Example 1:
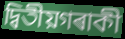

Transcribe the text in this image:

দ্বিতীয়গৰাকী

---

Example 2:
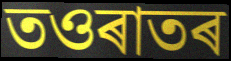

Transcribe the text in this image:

তওৰাতৰ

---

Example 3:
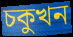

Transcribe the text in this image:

চকুখন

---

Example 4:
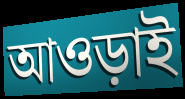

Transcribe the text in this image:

আওড়াই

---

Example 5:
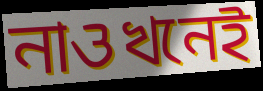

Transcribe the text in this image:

নাওখনেই